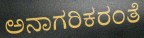
ಅನಾಗರಿಕರಂತೆ